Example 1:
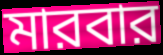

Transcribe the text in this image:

মারবার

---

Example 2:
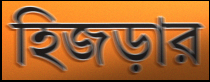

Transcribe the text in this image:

হিজড়ার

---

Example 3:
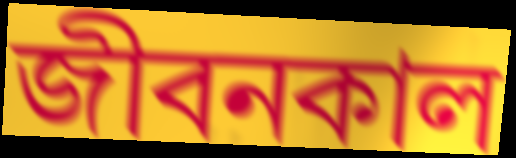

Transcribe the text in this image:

জীবনকাল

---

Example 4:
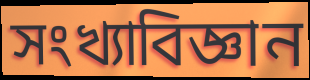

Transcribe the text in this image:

সংখ্যাবিজ্ঞান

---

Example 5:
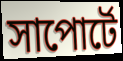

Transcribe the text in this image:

সাপোর্টে